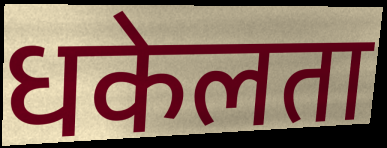
धकेलता